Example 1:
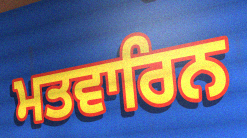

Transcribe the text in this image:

ਮਤਵਾਰਿਨ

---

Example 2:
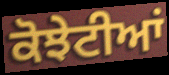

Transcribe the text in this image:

ਕੋਝੇਟੀਆਂ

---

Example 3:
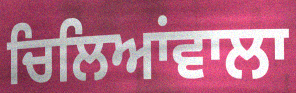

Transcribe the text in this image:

ਚਿਲਿਆਂਵਾਲਾ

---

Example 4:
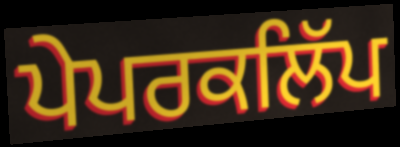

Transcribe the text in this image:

ਪੇਪਰਕਲਿੱਪ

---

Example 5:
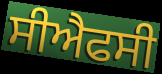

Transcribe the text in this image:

ਸੀਐਫਸੀ